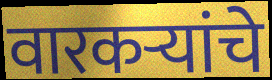
वारकऱ्यांचे